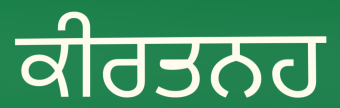
ਕੀਰਤਨਹ